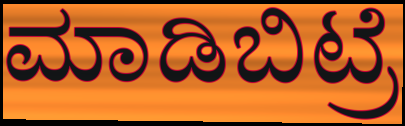
ಮಾಡಿಬಿಟ್ರೆ